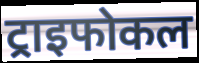
ट्राइफोकल